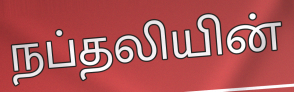
நப்தலியின்